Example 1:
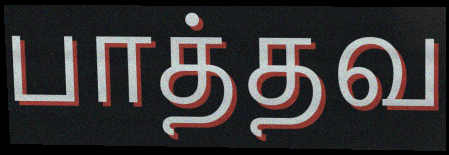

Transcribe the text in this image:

பாத்தவ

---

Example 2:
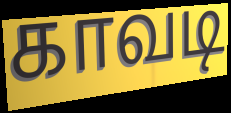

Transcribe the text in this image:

காவடி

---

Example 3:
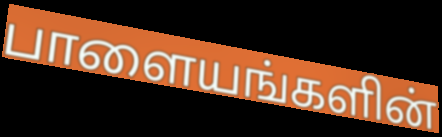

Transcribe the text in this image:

பாளையங்களின்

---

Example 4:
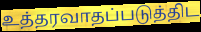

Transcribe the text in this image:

உத்தரவாதப்படுத்திட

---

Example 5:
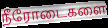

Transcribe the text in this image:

நீரோடைகளை